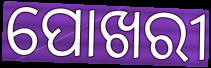
ପୋଖରୀ